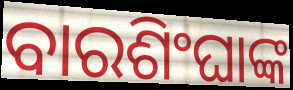
ବାରଶିଂଘାଙ୍କ